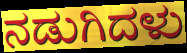
ನಡುಗಿದಳು